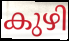
കുഴി